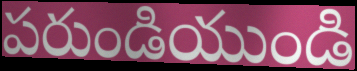
పరుండియుండి